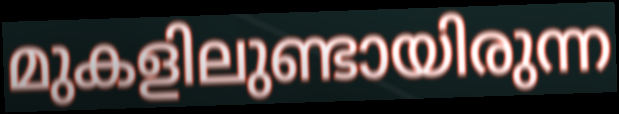
മുകളിലുണ്ടായിരുന്ന